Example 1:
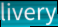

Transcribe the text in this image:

livery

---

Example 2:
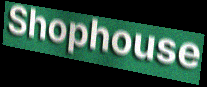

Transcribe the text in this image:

Shophouse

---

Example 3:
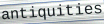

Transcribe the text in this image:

antiquities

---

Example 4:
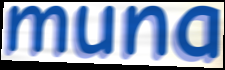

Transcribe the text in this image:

muna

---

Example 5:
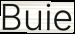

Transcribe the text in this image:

Buie